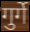
गुर्गे